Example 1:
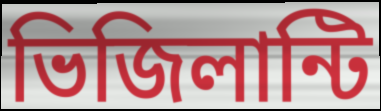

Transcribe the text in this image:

ভিজিলান্টি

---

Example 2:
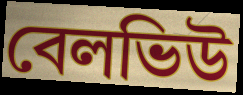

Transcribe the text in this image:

বেলভিউ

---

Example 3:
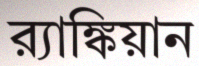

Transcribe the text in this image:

র‍্যাঙ্কিয়ান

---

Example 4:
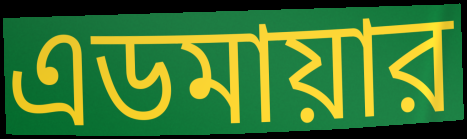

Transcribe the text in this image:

এডমায়ার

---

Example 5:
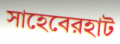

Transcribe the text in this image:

সাহেবেরহাট